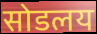
सोडलय